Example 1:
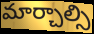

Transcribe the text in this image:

మార్చాల్సి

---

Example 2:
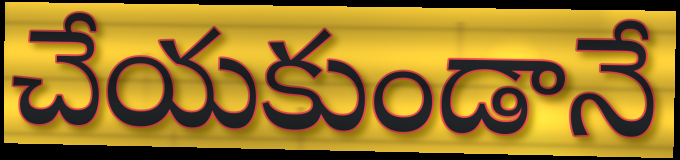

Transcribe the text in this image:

చేయకుండానే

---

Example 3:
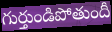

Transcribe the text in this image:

గుర్తుండిపోతుందీ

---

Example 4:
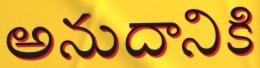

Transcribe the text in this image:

అనుదానికి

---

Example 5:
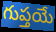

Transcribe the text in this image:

గుప్తయే